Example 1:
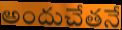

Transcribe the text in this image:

అందుచేతనే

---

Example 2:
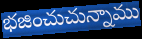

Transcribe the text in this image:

భజించుచున్నాము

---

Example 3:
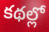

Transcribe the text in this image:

కథల్లో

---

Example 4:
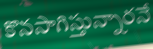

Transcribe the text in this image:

కొనసాగిస్తున్నారనే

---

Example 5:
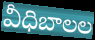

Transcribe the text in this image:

వీధిబాలల